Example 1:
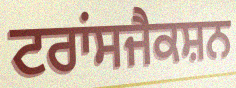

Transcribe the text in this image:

ਟਰਾਂਸਜੈਕਸ਼ਨ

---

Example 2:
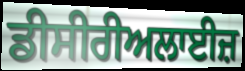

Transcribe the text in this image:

ਡੀਸੀਰੀਅਲਾਈਜ਼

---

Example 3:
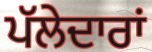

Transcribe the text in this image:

ਪੱਲੇਦਾਰਾਂ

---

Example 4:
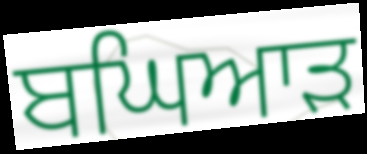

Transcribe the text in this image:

ਬਘਿਆੜ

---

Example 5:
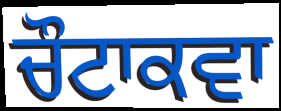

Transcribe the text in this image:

ਚੌਟਾਕਵਾ